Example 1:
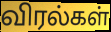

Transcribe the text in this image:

விரல்கள்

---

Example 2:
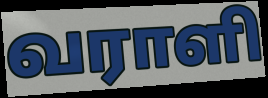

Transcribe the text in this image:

வராளி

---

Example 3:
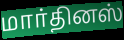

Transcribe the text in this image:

மார்தினஸ்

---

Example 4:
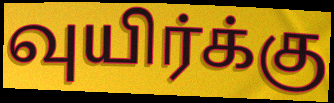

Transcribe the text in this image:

வுயிர்க்கு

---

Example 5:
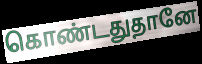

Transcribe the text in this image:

கொண்டதுதானே